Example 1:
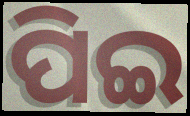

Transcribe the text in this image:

ପିଇ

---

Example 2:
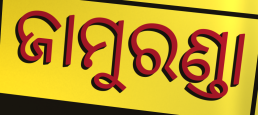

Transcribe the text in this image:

ଜାମୁରଣ୍ଡା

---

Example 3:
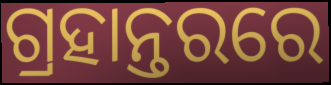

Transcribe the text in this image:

ଗ୍ରହାନ୍ତରରେ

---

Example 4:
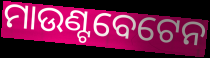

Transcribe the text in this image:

ମାଉଣ୍ଟବେଟେନ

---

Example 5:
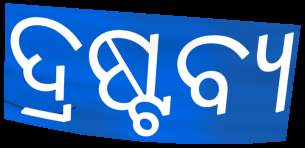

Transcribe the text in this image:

ଦ୍ରଷ୍ଟବ୍ୟ